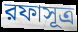
রফাসূত্র